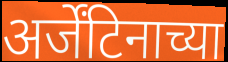
अर्जेंटिनाच्या